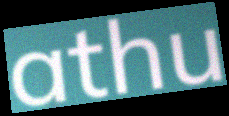
athu